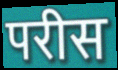
परीस